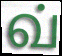
வ்